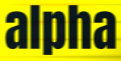
alpha